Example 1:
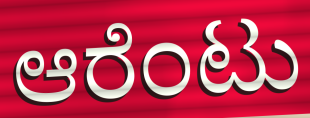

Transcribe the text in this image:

ಆರೆಂಟು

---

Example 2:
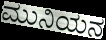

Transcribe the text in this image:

ಮುನಿಯನ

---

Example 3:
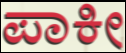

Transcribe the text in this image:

ಪಾಕೀ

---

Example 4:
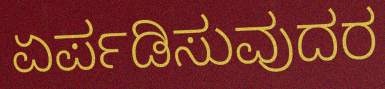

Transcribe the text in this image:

ಏರ್ಪಡಿಸುವುದರ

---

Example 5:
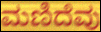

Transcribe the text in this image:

ಮಣಿದೆವು